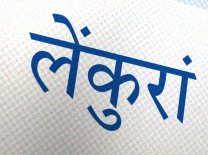
लेंकुरां